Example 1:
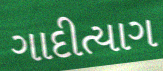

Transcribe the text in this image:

ગાદીત્યાગ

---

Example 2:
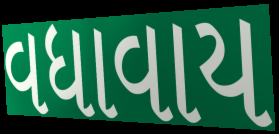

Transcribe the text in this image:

વધાવાય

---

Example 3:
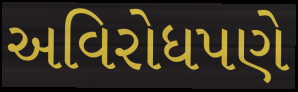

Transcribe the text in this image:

અવિરોધપણે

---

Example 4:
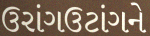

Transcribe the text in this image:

ઉરાંગઉટાંગને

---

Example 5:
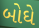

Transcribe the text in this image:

બોઘે